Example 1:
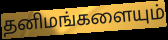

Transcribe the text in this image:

தனிமங்களையும்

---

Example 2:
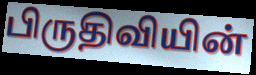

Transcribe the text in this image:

பிருதிவியின்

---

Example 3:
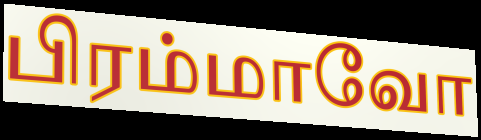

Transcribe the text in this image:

பிரம்மாவோ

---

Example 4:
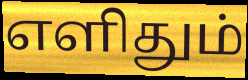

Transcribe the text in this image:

எளிதும்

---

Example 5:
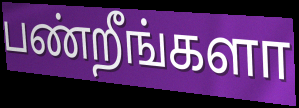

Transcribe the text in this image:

பண்றீங்களா